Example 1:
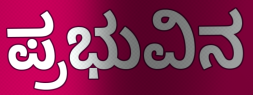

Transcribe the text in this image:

ಪ್ರಭುವಿನ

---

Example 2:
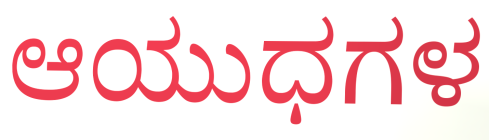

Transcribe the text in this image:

ಆಯುಧಗಳ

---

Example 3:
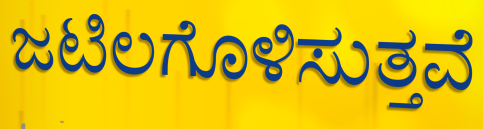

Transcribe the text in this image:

ಜಟಿಲಗೊಳಿಸುತ್ತವೆ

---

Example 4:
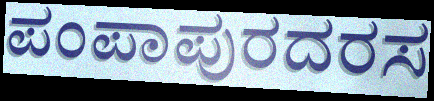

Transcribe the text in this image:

ಪಂಪಾಪುರದರಸ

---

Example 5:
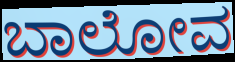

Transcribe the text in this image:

ಬಾಲೋವ